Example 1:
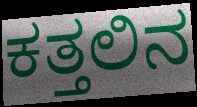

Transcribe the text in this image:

ಕತ್ತಲಿನ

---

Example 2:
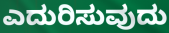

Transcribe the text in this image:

ಎದುರಿಸುವುದು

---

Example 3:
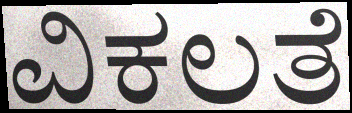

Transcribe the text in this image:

ವಿಕಲತೆ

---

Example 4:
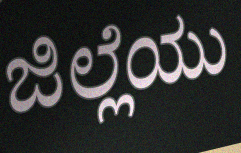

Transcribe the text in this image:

ಜಿಲ್ಲೆಯು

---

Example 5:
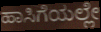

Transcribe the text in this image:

ಹಾಸಿಗೆಯಲ್ಲೇ